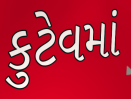
કુટેવમાં